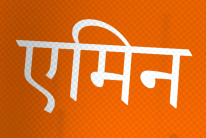
एमिन